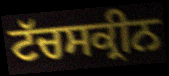
ਟੱਚਸਕ੍ਰੀਨ